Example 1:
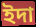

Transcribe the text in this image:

ইদা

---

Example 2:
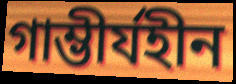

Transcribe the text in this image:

গাম্ভীর্যহীন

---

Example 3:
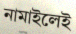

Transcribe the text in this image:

নামাইলেই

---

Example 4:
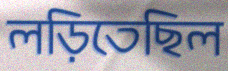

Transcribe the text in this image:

লড়িতেছিল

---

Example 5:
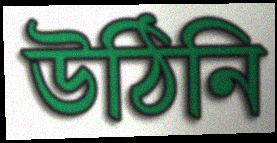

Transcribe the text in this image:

উঠিনি